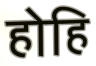
होहि